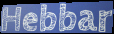
Hebbar